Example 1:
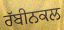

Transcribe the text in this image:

ਰੱਬੀਨਕਲ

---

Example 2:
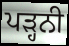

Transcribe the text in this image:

ਪੜ੍ਹਨੀ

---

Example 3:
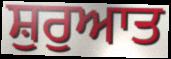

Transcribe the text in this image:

ਸ਼ੁਰੁਆਤ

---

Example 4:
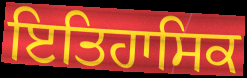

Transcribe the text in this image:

ਇਤਿਹਾਸਿਕ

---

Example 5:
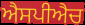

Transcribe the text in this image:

ਐਸਪੀਐਚ